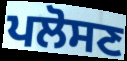
ਪਲੋਸਣ